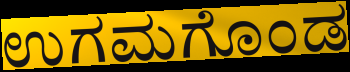
ಉಗಮಗೊಂಡ